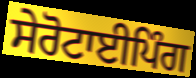
ਸੇਰੋਟਾਈਪਿੰਗ